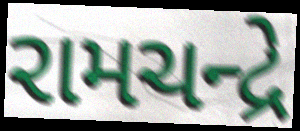
રામચન્દ્રે